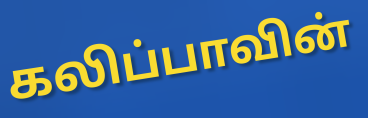
கலிப்பாவின்